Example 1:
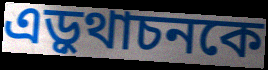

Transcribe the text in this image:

এড়ুথাচনকে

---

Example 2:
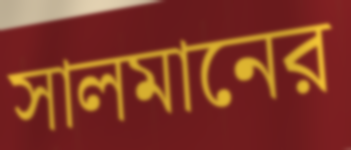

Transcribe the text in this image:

সালমানের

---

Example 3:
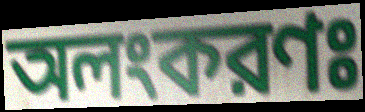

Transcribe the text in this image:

অলংকরণঃ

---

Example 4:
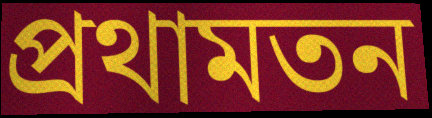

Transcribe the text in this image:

প্রথামতন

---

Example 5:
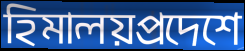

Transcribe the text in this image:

হিমালয়প্রদেশে